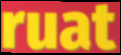
ruat